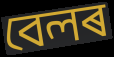
বেলৰ